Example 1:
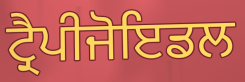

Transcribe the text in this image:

ਟ੍ਰੈਪੀਜੋਇਡਲ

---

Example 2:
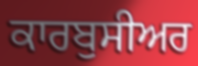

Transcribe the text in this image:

ਕਾਰਬੁਸੀਅਰ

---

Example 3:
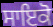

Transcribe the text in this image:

ਸਾਇਕੋ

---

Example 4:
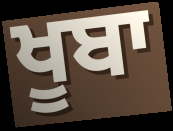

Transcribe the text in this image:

ਖੂਬਾ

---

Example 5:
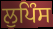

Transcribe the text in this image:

ਲੁਪਿੰਸ